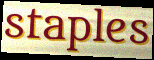
staples